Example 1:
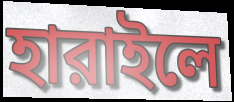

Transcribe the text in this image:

হারাইলে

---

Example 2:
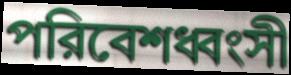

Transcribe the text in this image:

পরিবেশধ্বংসী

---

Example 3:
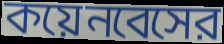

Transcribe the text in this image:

কয়েনবেসের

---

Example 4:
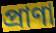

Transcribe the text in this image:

প্রাণা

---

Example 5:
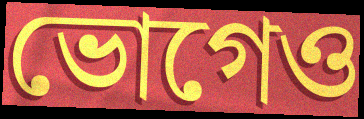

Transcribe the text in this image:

ভোগেও